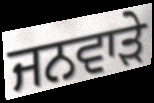
ਜਨਵਾੜੇ